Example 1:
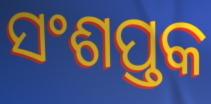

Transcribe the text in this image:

ସଂଶପ୍ତକ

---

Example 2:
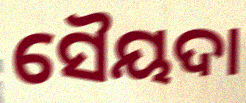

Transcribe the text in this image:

ସୈୟଦା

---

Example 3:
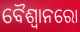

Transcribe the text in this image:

ବୈଶ୍ୱାନରୋ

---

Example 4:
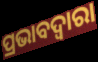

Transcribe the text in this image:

ପ୍ରଭାବଦ୍ୱାରା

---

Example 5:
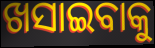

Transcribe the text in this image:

ଖସାଇବାକୁ